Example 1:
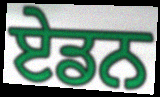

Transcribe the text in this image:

ਏਡਨ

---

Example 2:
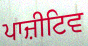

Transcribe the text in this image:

ਪਾਜ਼ੀਟਿਵ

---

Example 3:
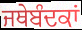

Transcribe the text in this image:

ਜਥੇਬੰਦਕਾਂ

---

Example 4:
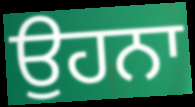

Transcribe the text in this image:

ਉਹਨਾ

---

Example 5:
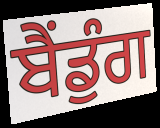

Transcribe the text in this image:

ਬੈਂਡੁੰਗ